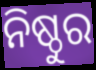
ନିଷ୍ଠୁର